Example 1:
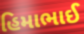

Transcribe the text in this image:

હિમાભાઈ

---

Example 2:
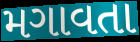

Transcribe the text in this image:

મગાવતા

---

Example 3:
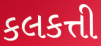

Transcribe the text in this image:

કલકત્તી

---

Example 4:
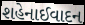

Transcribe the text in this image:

શહેનાઈવાદન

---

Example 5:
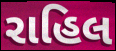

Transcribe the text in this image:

રાહિલ